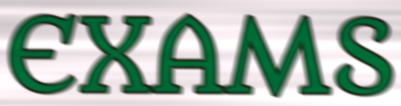
EXAMS